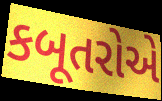
કબૂતરોએ